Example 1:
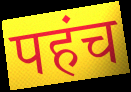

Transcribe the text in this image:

पहंच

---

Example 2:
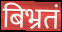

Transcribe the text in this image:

बिभ्रतं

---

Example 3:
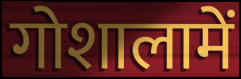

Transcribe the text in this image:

गोशालामें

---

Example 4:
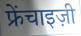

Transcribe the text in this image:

फ्रेंचाइज़ी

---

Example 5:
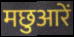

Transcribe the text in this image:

मछुआरें